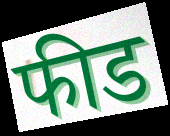
फीड